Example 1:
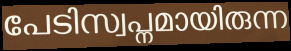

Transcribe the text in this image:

പേടിസ്വപ്നമായിരുന്ന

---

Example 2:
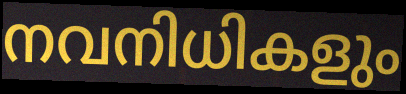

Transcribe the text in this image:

നവനിധികളും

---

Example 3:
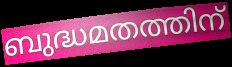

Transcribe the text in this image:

ബുദ്ധമതത്തിന്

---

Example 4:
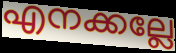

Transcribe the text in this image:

എനക്കല്ലേ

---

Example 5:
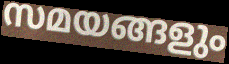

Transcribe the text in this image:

സമയങ്ങളും